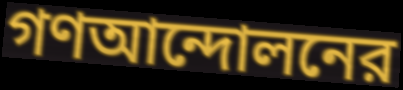
গণআন্দোলনের